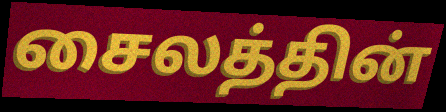
சைலத்தின்